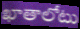
ఖాతాలోటు